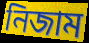
নিজাম